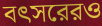
বৎসরেরও